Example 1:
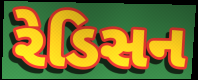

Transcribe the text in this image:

રેડિસન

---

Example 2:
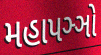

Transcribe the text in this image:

મહાપઞ્ઞો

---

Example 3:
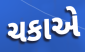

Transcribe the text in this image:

ચકાએ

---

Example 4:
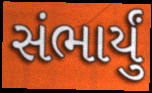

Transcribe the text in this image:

સંભાર્યું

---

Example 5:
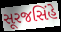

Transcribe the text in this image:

સૂરજસિંહે